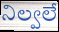
నిల్వలే